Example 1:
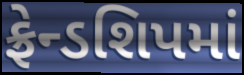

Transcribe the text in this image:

ફ્રેન્ડશિપમાં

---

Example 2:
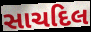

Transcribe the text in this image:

સાચદિલ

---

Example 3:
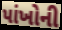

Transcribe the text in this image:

પાંખોની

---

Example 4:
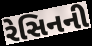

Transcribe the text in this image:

રેસિનની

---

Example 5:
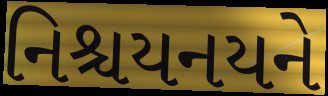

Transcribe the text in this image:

નિશ્ચયનયને